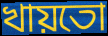
খায়তো